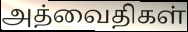
அத்வைதிகள்